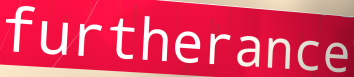
furtherance